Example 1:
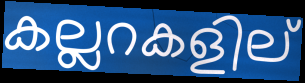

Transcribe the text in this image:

കല്ലറകളില്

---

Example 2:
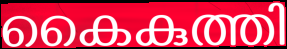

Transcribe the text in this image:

കൈകുത്തി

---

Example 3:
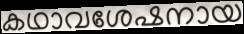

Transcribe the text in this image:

കഥാവശേഷനായ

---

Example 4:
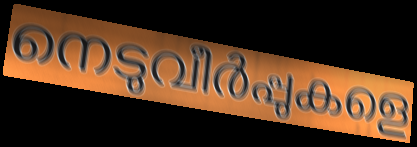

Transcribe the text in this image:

നെടുവീർപ്പുകളെ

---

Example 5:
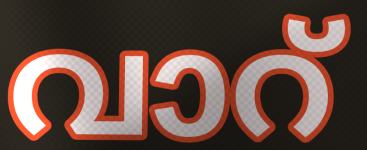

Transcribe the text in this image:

വാറ്